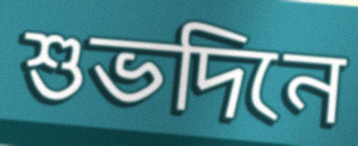
শুভদিনে